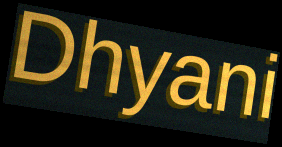
Dhyani